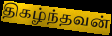
திகழ்ந்தவன்